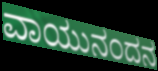
ವಾಯುನಂದನ